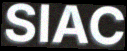
SIAC